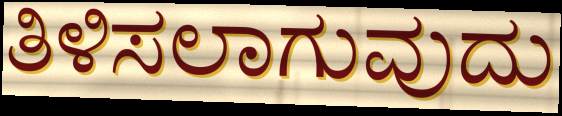
ತಿಳಿಸಲಾಗುವುದು